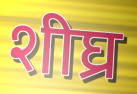
शीघ्र